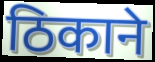
ठिकाने